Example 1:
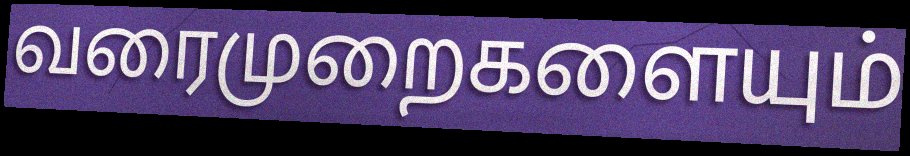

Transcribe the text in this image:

வரைமுறைகளையும்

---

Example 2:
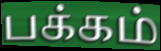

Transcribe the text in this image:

பக்கம்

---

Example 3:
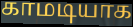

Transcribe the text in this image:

காமடியாக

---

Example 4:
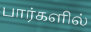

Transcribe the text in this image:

பார்களில்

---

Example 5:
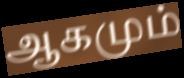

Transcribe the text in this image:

ஆகமும்